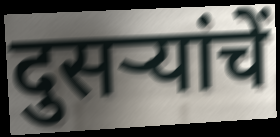
दुसऱ्यांचें